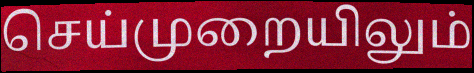
செய்முறையிலும்